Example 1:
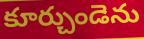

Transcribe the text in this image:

కూర్చుండెను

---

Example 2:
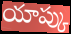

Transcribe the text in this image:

యాప్కు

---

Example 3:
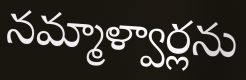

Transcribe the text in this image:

నమ్మాళ్వార్లను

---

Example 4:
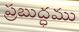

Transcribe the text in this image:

ప్రబుద్ధము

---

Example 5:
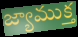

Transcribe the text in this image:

జ్యాముక్త